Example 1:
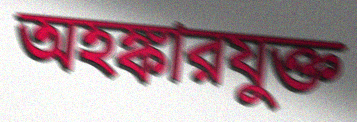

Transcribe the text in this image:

অহঙ্কারযুক্ত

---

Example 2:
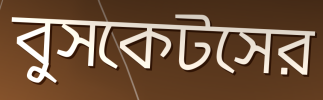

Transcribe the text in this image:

বুসকেটসের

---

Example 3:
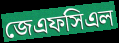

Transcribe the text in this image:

জেএফসিএল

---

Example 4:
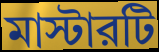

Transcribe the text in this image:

মাস্টারটি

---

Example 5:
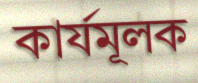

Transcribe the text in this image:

কার্যমূলক